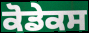
ਕੋਡੇਕਸ